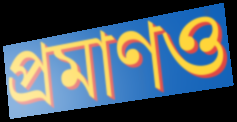
প্রমাণও